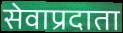
सेवाप्रदाता